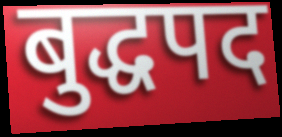
बुद्धपद